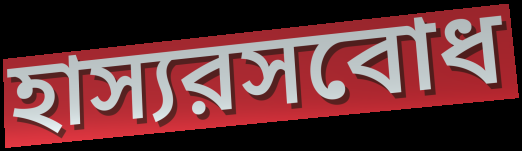
হাস্যরসবোধ